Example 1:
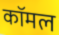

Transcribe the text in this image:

कॉमल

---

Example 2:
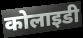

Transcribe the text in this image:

कोलाइडी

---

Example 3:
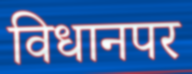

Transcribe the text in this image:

विधानपर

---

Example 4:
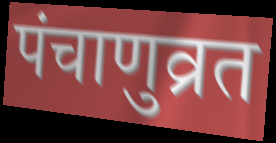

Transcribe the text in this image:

पंचाणुव्रत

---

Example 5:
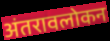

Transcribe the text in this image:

अंतरावलोकन